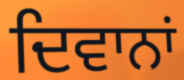
ਦਿਵਾਨਾਂ